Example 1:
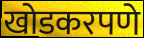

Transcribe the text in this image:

खोडकरपणे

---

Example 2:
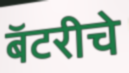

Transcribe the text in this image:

बॅटरीचे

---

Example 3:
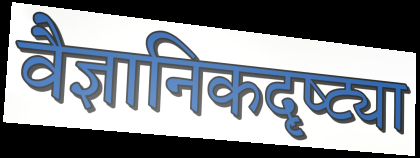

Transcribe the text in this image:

वैज्ञानिकदृष्ट्या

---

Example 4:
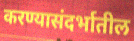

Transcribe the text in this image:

करण्यासंदर्भातील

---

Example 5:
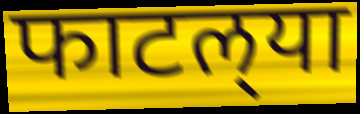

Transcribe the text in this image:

फाटल्या